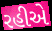
રહીએ